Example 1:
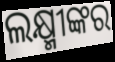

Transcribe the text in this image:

ଲକ୍ଷ୍ମୀଙ୍କର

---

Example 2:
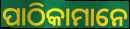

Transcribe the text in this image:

ପାଠିକାମାନେ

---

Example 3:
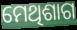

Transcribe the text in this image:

ମେଥିଶାଗ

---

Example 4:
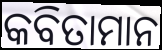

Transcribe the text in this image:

କବିତାମାନ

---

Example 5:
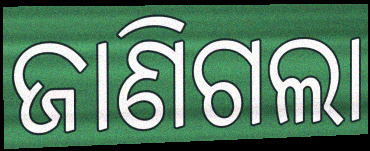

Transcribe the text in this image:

ଜାଣିଗଲା